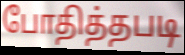
போதித்தபடி